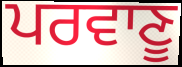
ਪਰਵਾਣੂ